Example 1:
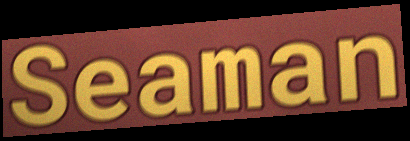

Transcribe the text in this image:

Seaman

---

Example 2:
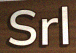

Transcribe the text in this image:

Srl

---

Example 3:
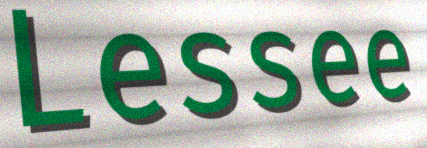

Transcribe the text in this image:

Lessee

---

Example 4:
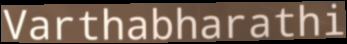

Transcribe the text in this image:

Varthabharathi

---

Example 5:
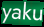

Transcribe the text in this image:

yaku